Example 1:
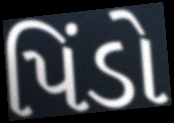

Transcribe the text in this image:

પિંડો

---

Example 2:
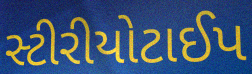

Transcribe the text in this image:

સ્ટીરીયોટાઈપ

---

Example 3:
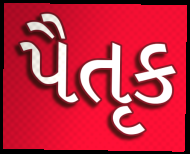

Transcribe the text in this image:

પૈતૃક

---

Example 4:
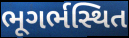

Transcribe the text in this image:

ભૂગર્ભસ્થિત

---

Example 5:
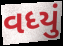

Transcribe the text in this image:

વધ્યું